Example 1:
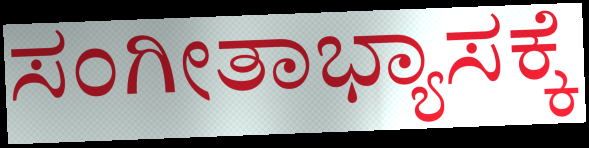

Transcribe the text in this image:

ಸಂಗೀತಾಭ್ಯಾಸಕ್ಕೆ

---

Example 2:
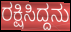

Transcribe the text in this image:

ರಕ್ಷಿಸಿದ್ದನು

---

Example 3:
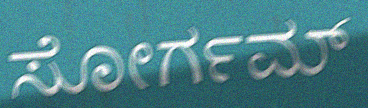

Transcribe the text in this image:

ಸೋರ್ಗಮ್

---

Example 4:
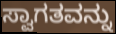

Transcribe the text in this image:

ಸ್ವಾಗತವನ್ನು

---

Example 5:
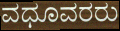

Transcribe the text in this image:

ವಧೂವರರು